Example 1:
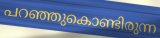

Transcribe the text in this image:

പറഞ്ഞുകൊണ്ടിരുന്ന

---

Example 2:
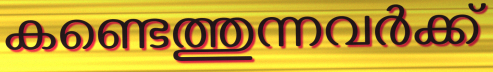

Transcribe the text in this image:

കണ്ടെത്തുന്നവർക്ക്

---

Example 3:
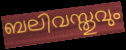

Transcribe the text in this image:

ബലിവസ്തുവും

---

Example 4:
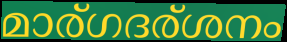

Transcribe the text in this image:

മാര്ഗദര്ശനം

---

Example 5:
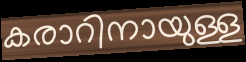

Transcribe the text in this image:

കരാറിനായുള്ള